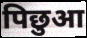
पिछुआ